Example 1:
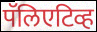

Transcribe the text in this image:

पॅलिएटिव्ह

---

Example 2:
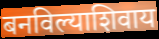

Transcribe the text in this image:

बनविल्याशिवाय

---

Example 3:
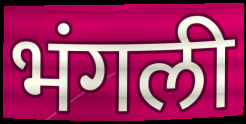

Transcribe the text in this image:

भंगली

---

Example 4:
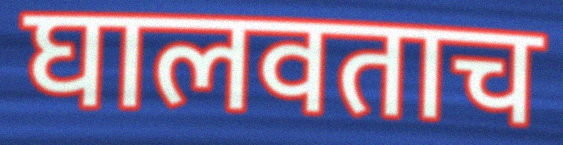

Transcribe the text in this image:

घालवताच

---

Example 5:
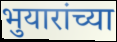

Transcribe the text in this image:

भुयारांच्या